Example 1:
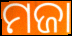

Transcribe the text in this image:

ମଜା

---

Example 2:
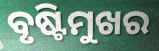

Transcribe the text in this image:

ବୃଷ୍ଟିମୁଖର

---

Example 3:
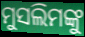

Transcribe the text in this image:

ମୁସଲିମଙ୍କୁ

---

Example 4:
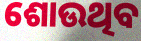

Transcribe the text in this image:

ଶୋଉଥିବ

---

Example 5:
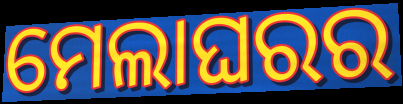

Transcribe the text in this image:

ମେଲାଘରର